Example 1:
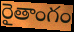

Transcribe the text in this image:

రైతాంగం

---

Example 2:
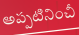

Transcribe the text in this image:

అప్పటినించీ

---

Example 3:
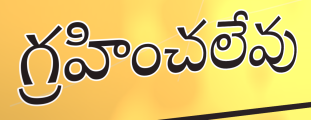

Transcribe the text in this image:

గ్రహించలేవు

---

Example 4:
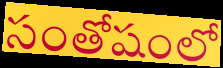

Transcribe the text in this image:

సంతోషంలో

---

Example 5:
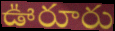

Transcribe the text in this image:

ఊరూరు